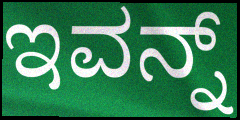
ಇವನ್ನ್